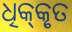
ଧିକ୍‌କୃତ